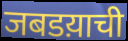
जबडय़ाची